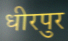
धीरपुर